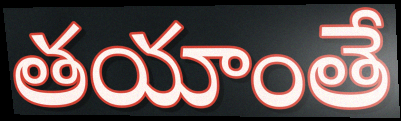
తయాంతే